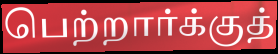
பெற்றார்க்குத்